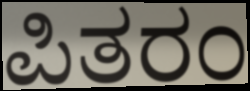
ಪಿತರಂ